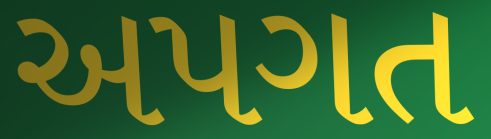
અપગત